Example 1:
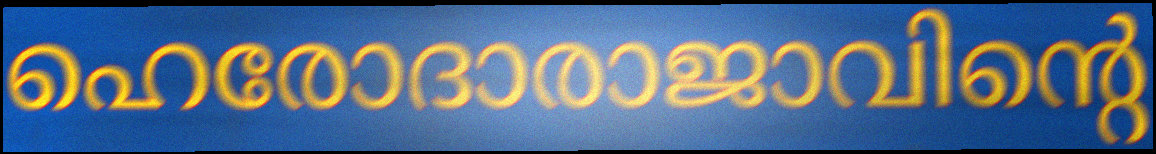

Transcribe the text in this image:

ഹെരോദാരാജാവിന്റെ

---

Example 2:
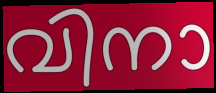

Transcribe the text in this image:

വിനാ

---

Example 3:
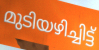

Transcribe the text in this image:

മുടിയഴിച്ചിട്ട്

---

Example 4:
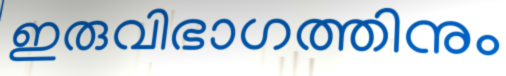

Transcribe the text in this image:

ഇരുവിഭാഗത്തിനും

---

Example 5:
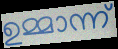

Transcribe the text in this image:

ഉമ്മാന്ന്